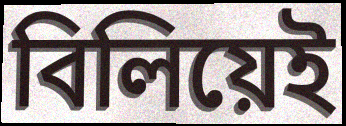
বিলিয়েই